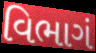
વિભાગં